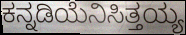
ಕನ್ನಡಿಯೆನಿಸಿತ್ತಯ್ಯ